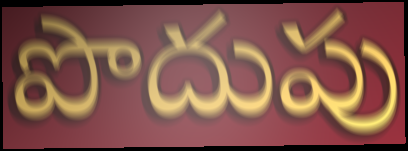
పొదుపు